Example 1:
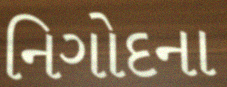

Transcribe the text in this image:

નિગોદના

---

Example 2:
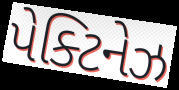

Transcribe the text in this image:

પેક્ટિનેઝ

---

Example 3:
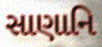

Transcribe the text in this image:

સાણાનિ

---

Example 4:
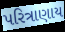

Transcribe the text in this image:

પરિત્રાણાય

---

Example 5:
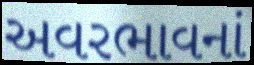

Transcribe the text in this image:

અવરભાવનાં